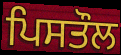
ਪਿਸਤੌਲ